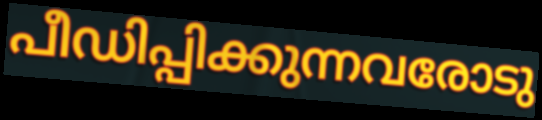
പീഡിപ്പിക്കുന്നവരോടു